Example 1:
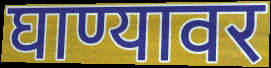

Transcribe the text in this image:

घाण्यावर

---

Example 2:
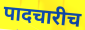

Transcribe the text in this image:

पादचारीच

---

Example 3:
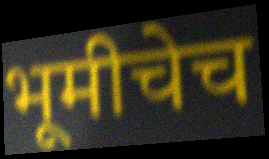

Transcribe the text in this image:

भूमीचेच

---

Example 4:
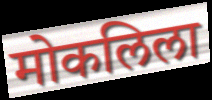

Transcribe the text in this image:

मोकलिला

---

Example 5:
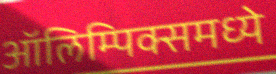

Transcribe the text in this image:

ऑलिम्पिक्समध्ये